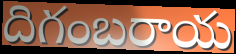
దిగంబరాయ